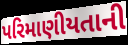
પરિમાણીયતાની